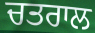
ਚਤਰਾਲ